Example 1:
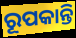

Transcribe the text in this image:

ରୂପକାନ୍ତି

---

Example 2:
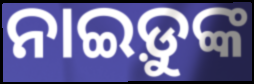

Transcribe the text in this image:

ନାଇଡ଼ୁଙ୍କ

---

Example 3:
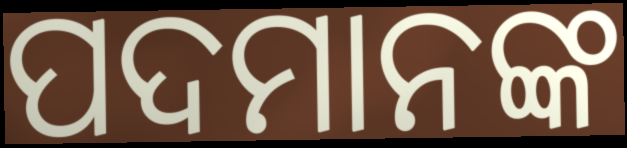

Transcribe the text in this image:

ପଦମାନଙ୍କ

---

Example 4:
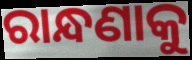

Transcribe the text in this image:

ରାନ୍ଧଣାକୁ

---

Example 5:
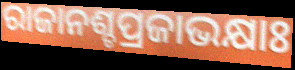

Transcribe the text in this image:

ରାଜାନଶ୍ଚପ୍ରଜାଭକ୍ଷାଃ